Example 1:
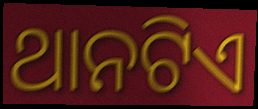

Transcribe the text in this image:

ଥାନଟିଏ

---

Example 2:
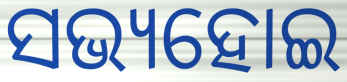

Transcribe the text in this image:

ସଭ୍ୟହୋଇ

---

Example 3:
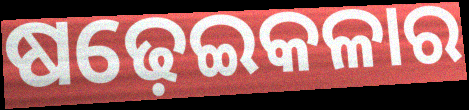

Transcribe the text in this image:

ଷଢ଼େଇକଳାର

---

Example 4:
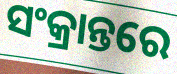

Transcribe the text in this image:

ସଂକ୍ରାନ୍ତରେ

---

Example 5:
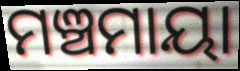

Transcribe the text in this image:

ମଞ୍ଚମାୟା